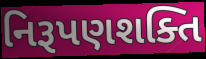
નિરૂપણશક્તિ